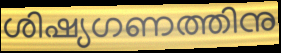
ശിഷ്യഗണത്തിനു